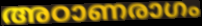
അഠാണരാഗം